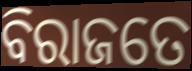
ବିରାଜତେ